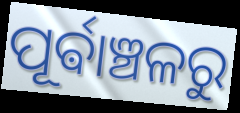
ପୂର୍ଵାଞ୍ଚଳରୁ